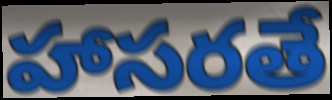
హాసరతే